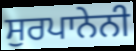
ਸੁਰਪਾਨੇਨੀ